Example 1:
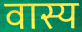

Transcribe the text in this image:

वास्य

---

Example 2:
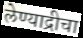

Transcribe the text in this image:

लेण्याद्रीचा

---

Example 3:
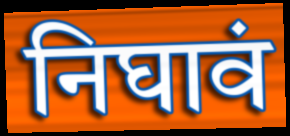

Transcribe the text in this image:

निघावं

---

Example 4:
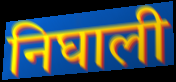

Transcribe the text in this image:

निघाली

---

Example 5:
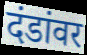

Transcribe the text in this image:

दंडांवर